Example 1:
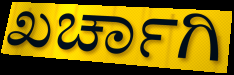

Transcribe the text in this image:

ಖರ್ಚಾಗಿ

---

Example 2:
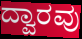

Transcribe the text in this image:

ದ್ವಾರವು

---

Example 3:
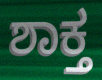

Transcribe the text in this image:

ಶಾಕ್ತ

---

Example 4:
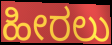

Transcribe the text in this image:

ಹೀರಲು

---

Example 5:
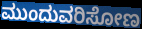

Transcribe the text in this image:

ಮುಂದುವರಿಸೋಣ